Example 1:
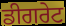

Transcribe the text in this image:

ਡੀਗਰੇਟ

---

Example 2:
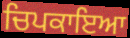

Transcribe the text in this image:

ਚਿਪਕਾਇਆ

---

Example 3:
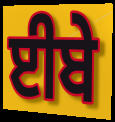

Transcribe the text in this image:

ਈਬੇ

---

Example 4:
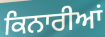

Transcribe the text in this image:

ਕਿਨਾਰੀਆਂ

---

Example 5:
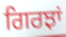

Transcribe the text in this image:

ਗਿਰਝਾਂ